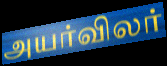
அயர்விலர்